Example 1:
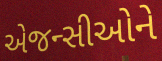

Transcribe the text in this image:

એજન્સીઓને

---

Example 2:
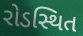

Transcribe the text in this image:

રોડસ્થિત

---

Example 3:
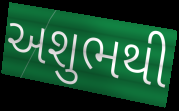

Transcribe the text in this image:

અશુભથી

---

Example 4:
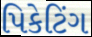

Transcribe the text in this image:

પિકેટિંગ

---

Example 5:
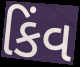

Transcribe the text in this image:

કિંવ